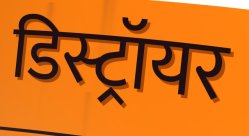
डिस्‍ट्रॉयर